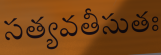
సత్యవతీసుతః